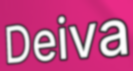
Deiva